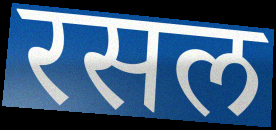
रसल